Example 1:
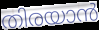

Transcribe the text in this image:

തിരയാൻ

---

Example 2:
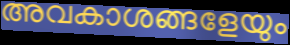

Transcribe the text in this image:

അവകാശങ്ങളേയും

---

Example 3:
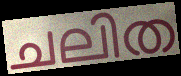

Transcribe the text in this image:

ചലിത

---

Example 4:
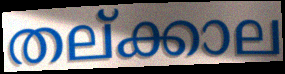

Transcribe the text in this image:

തല്ക്കാല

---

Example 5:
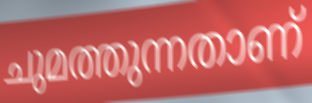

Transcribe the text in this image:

ചുമത്തുന്നതാണ്